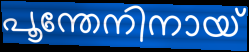
പൂന്തേനിനായ്